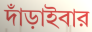
দাঁড়াইবার